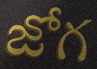
జోగ